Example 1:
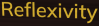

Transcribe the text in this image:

Reflexivity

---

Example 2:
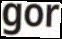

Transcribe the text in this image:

gor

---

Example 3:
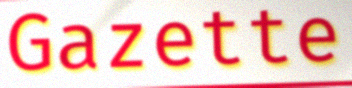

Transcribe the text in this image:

Gazette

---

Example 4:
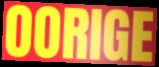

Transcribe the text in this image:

OORIGE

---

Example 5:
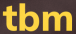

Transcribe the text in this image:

tbm